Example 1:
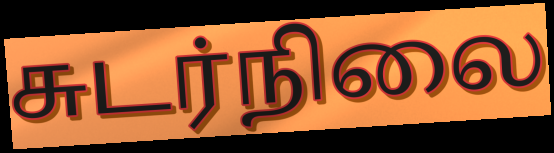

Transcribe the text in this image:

சுடர்நிலை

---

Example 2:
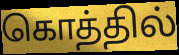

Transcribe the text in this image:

கொத்தில்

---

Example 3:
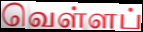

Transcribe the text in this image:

வெள்ளப்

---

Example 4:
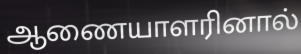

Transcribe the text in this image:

ஆணையாளரினால்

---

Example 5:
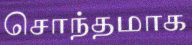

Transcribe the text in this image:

சொந்தமாக